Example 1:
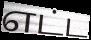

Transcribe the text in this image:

எட்ட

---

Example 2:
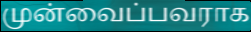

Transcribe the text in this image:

முன்வைப்பவராக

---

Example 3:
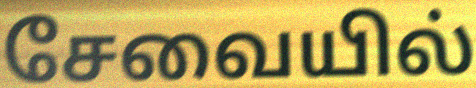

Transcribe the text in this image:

சேவையில்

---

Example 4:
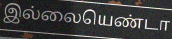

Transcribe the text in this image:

இல்லையெண்டா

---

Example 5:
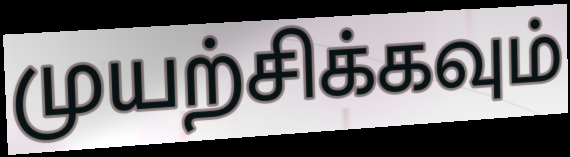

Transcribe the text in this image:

முயற்சிக்கவும்